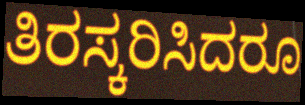
ತಿರಸ್ಕರಿಸಿದರೂ